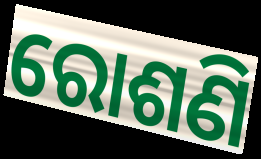
ରୋଶଣି